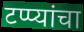
टप्प्यांचा